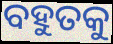
ବହୁତକୁ